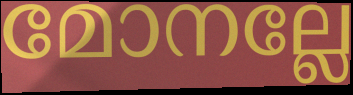
മോനല്ലേ